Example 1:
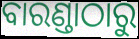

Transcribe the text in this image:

ବାରଣ୍ଡାଠାରୁ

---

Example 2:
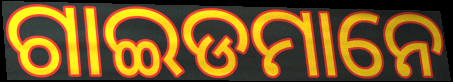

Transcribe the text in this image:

ଗାଇଡମାନେ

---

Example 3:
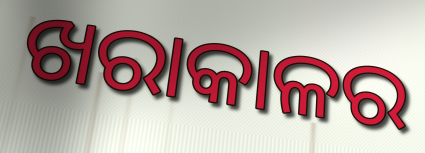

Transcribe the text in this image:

ଖରାକାଳର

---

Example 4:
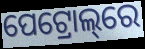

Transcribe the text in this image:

ପେଟ୍ରୋଲ୍‌ରେ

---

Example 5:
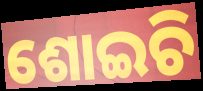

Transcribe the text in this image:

ଶୋଇଚି